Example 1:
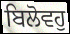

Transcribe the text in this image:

ਬਿਲੋਵਹੁ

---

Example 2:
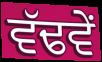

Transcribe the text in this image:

ਵੱਢਵੇਂ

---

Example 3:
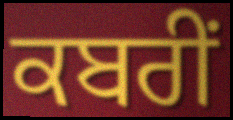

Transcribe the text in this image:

ਕਬਰੀਂ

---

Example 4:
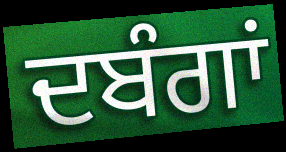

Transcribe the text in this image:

ਦਬੰਗਾਂ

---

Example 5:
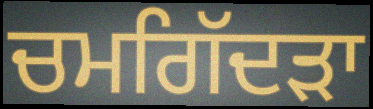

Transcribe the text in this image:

ਚਮਗਿੱਦੜਾ